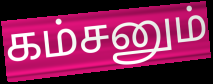
கம்சனும்